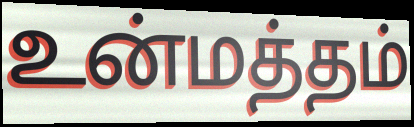
உன்மத்தம்